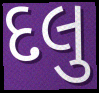
દલુ